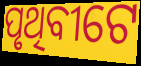
ପୃଥିବୀଟେ